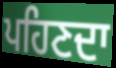
ਪਹਿਣਦਾ